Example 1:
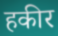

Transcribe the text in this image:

हकीर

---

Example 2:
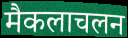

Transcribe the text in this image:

मैकलाचलन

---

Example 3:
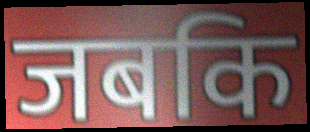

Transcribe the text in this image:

जबकि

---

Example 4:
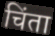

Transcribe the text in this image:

चिंता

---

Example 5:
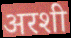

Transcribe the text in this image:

अरशी